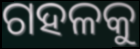
ଗହଳକୁ